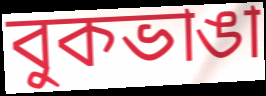
বুকভাঙা